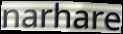
narhare